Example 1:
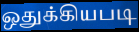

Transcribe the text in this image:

ஒதுக்கியபடி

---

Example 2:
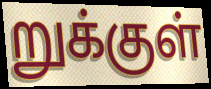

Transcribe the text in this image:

றுக்குள்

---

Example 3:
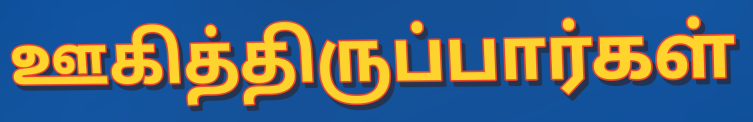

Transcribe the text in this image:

ஊகித்திருப்பார்கள்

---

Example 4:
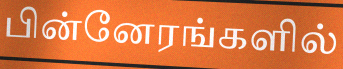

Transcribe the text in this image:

பின்னேரங்களில்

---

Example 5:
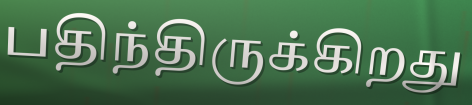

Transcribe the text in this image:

பதிந்திருக்கிறது